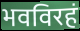
भवविरहं